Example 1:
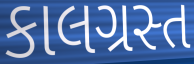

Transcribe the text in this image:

કાલગ્રસ્ત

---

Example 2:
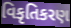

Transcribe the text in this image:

વિકૃતિકરણ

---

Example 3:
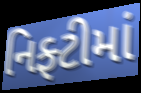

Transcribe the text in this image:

નિફ્ટીમાં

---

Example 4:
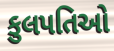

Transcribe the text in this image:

કુલપતિઓ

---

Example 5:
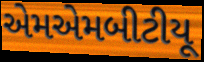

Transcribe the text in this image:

એમએમબીટીયૂ